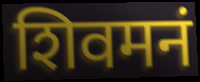
शिवमनं